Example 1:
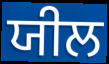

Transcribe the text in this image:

ਯੀਲ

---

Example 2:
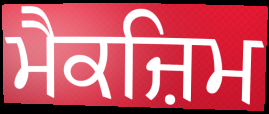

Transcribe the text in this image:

ਮੈਕਜ਼ਿਮ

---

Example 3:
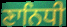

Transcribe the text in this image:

ਣਾਨਿਧੀ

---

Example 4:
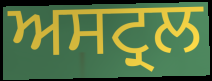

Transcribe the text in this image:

ਅਸਟ੍ਰਲ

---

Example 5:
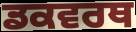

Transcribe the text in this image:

ਡਕਵਰਥ